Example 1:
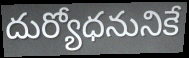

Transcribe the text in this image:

దుర్యోధనునికే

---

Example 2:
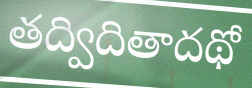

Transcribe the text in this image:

తద్విదితాదథో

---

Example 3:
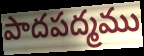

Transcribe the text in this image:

పాదపద్మము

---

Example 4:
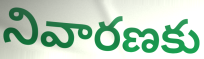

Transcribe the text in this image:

నివారణకు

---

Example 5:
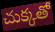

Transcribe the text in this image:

చుక్కతో